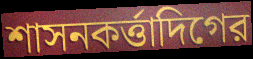
শাসনকর্ত্তাদিগের